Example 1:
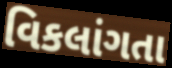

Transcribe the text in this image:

વિકલાંગતા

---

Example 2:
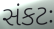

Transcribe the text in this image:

સંકટઃ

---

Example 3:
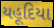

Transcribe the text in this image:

યહૂદિયા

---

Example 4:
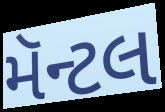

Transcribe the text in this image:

મૅન્ટલ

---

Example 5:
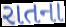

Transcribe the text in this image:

રાતના